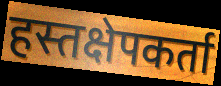
हस्तक्षेपकर्ता